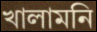
খালামনি